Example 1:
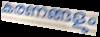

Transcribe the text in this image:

കരണങ്ങളും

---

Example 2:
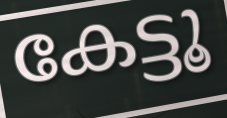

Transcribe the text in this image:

കേട്ടൂ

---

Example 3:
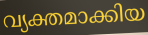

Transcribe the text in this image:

വ്യക്തമാക്കിയ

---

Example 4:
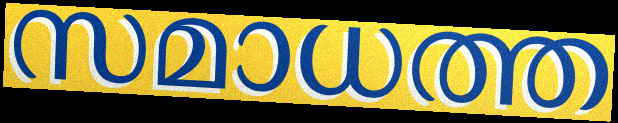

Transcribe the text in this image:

സമാധത്ത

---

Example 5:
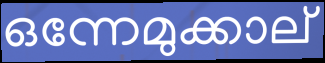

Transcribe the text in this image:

ഒന്നേമുക്കാല്